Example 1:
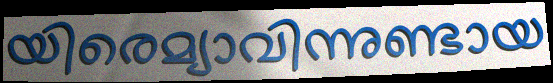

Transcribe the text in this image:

യിരെമ്യാവിന്നുണ്ടായ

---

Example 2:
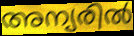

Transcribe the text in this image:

അന്യരിൽ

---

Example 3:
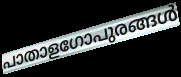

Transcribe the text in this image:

പാതാളഗോപുരങ്ങൾ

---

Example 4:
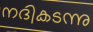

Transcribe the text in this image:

നദികടന്നു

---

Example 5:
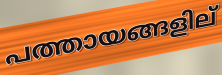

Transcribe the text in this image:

പത്തായങ്ങളില്